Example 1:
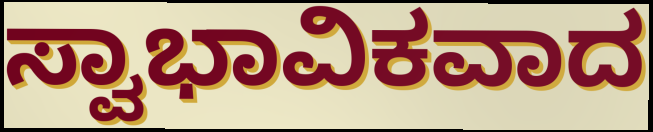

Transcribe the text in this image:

ಸ್ವಾಭಾವಿಕವಾದ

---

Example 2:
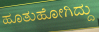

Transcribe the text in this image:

ಹೂತುಹೋಗಿದ್ದು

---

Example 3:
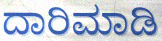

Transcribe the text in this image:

ದಾರಿಮಾಡಿ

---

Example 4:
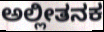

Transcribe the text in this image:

ಅಲ್ಲೀತನಕ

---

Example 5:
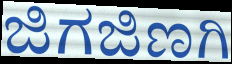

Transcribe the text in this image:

ಜಿಗಜಿಣಗಿ